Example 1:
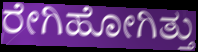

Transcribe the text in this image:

ರೇಗಿಹೋಗಿತ್ತು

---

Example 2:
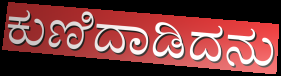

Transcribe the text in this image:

ಕುಣಿದಾಡಿದನು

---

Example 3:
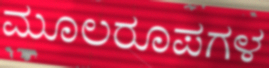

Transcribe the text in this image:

ಮೂಲರೂಪಗಳ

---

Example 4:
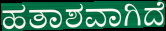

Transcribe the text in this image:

ಹತಾಶವಾಗಿದೆ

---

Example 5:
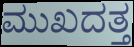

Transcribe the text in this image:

ಮುಖದತ್ತ